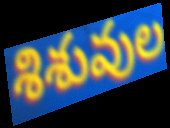
శిశువుల